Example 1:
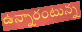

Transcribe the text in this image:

ఉన్నారంటున్న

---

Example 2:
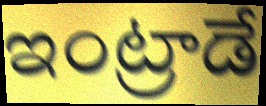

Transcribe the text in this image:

ఇంట్రాడే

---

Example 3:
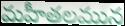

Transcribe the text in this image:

మహీతలమున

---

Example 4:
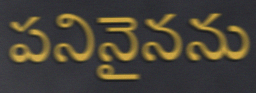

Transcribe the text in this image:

పనినైనను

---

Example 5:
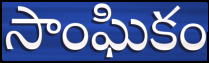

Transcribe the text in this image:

సాంఘికం